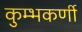
कुम्भकर्णी